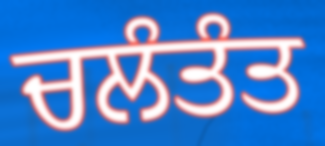
ਚਲੰਤੰਤ